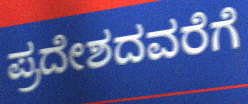
ಪ್ರದೇಶದವರೆಗೆ